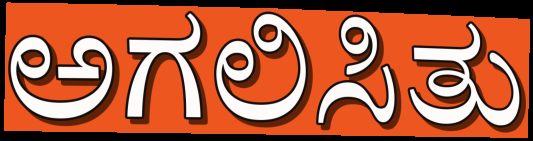
ಅಗಲಿಸಿತು